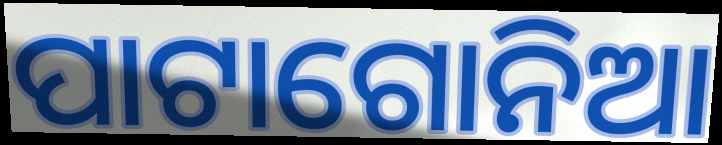
ପାଟାଗୋନିଆ